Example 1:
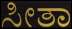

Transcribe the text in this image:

ಸೀತಾ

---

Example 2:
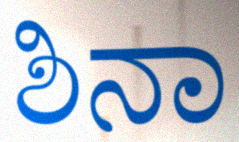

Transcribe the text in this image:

ಶಿನಾ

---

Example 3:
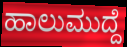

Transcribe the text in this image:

ಹಾಲುಮುದ್ದೆ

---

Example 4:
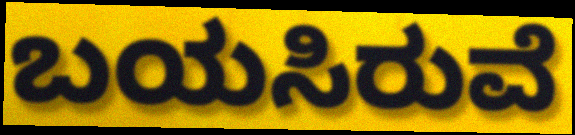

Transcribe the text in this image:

ಬಯಸಿರುವೆ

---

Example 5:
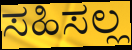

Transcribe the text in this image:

ಸಹಿಸಲ್ಲ